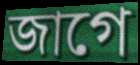
জাগে